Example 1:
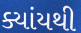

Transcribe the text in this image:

ક્યાંયથી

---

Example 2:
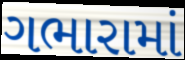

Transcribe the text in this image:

ગભારામાં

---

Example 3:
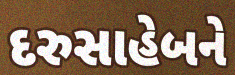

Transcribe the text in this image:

દરુસાહેબને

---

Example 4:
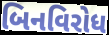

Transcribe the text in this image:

બિનવિરોધ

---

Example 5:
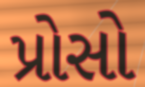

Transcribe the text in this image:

પ્રોસો